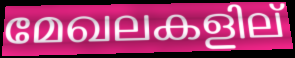
മേഖലകളില്